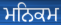
ਮਨਿਕਮ